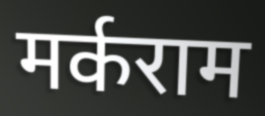
मर्कराम